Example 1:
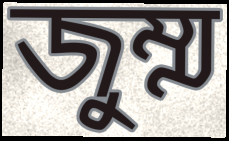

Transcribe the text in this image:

জুম্ম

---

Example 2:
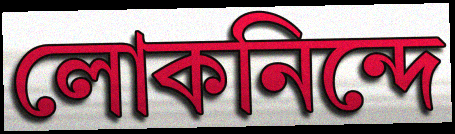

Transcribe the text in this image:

লোকনিন্দে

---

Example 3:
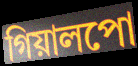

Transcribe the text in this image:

গিয়ালপো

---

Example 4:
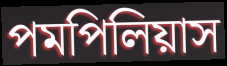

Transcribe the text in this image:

পমপিলিয়াস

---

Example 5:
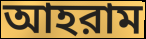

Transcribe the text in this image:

আহরাম